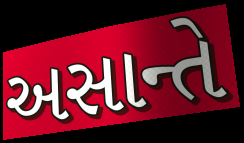
અસાન્તે